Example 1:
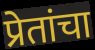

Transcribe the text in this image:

प्रेतांचा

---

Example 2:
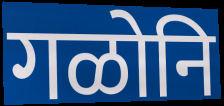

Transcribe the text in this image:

गळोनि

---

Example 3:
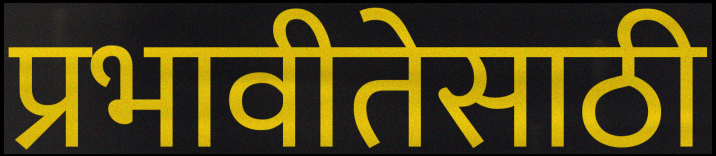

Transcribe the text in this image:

प्रभावीतेसाठी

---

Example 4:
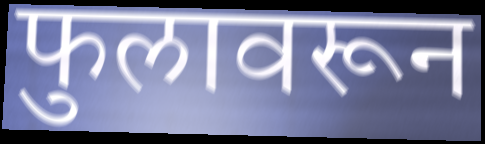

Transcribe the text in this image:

फुलावरून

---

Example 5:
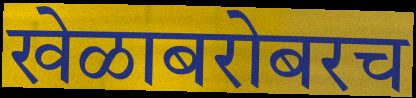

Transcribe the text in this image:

खेळाबरोबरच